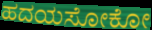
ಹದಯಸೋಕೋ